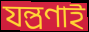
যন্ত্রণাই